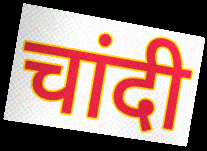
चांदी